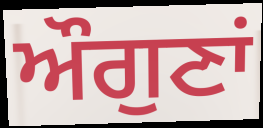
ਔਗੁਣਾਂ